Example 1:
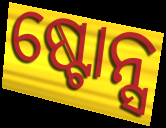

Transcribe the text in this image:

ଷ୍ଟୋନ୍ସ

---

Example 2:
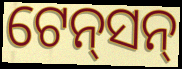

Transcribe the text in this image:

ଟେନ୍‌ସନ୍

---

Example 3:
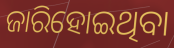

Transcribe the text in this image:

ଜାରିହୋଇଥିବା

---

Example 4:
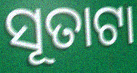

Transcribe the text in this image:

ସୂତାଟା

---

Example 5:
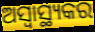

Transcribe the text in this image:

ଅସ୍ୱାସ୍ଥ୍ୟକର